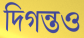
দিগন্তও